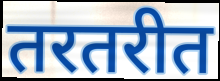
तरतरीत